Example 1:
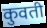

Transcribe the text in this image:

कुवती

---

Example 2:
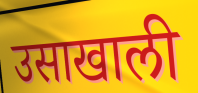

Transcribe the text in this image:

उसाखाली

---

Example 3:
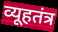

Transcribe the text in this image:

व्यूहतंत्र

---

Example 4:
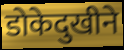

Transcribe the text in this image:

डोकेदुखीने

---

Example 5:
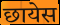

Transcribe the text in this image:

छायेस